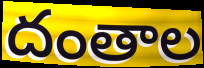
దంతాల